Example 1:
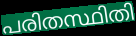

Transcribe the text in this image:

പരിതസ്ഥിതി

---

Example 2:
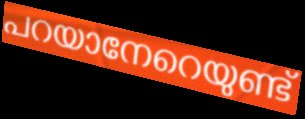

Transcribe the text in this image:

പറയാനേറെയുണ്ട്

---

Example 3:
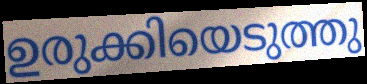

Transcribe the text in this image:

ഉരുക്കിയെടുത്തു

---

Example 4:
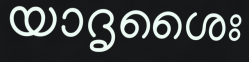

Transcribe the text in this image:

യാദൃശൈഃ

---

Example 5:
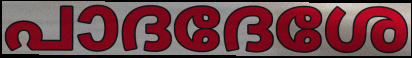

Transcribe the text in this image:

പാദദേശേ